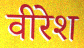
वीरेश